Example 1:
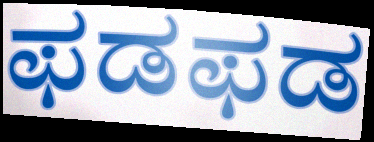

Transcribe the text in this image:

ಫಡಫಡ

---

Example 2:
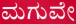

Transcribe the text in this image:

ಮಗುವೇ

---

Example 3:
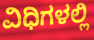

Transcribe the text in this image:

ವಿಧಿಗಳಲ್ಲಿ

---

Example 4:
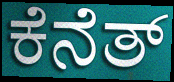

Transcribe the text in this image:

ಕೆನೆತ್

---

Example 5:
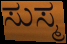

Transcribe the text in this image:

ಸುಸ್ಮ